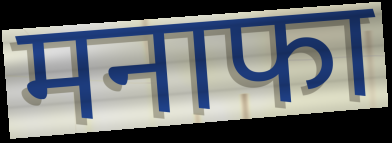
मनाफा